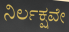
ನಿರ್ಲಕ್ಷವೇ